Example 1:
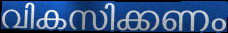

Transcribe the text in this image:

വികസിക്കണം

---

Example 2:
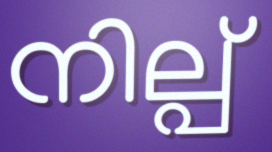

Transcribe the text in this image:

നില്പ്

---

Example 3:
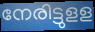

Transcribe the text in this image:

നേരിട്ടുളള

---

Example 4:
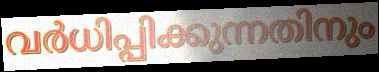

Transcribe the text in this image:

വർധിപ്പിക്കുന്നതിനും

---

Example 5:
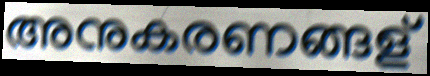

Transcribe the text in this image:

അനുകരണങ്ങള്